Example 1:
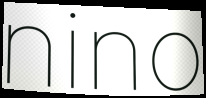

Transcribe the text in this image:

nino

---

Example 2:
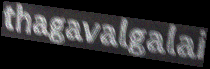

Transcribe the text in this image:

thagavalgalai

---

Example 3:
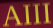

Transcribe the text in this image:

AIII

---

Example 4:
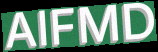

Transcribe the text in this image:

AIFMD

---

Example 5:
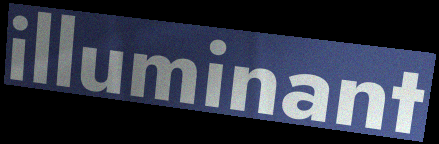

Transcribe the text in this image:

illuminant